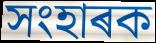
সংহাৰক